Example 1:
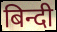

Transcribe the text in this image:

बिन्दी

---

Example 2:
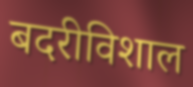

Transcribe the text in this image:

बदरीविशाल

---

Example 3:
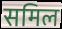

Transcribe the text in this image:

समिल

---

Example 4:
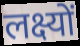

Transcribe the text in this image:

लक्ष्यों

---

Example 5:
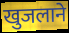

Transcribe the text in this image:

खुजलाने